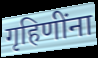
गृहिणींना